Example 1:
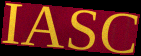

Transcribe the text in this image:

IASC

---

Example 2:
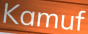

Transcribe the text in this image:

Kamuf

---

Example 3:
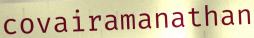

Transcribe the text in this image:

covairamanathan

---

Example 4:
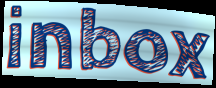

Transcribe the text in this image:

inbox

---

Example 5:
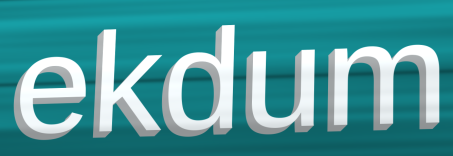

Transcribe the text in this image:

ekdum